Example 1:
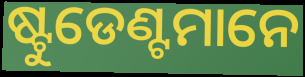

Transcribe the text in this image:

ଷ୍ଟୁଡେଣ୍ଟମାନେ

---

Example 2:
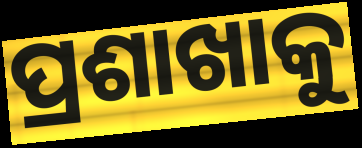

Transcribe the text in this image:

ପ୍ରଶାଖାକୁ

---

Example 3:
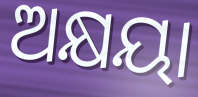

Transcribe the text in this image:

ଅକ୍ଷୟା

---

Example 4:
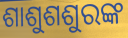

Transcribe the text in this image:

ଶାଶୁଶଶୁରଙ୍କ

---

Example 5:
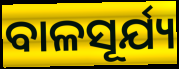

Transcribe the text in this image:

ବାଳସୂର୍ଯ୍ୟ